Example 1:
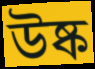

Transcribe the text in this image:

উষ্ক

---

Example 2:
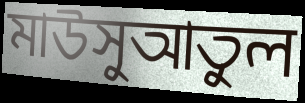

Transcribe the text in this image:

মাউসুআতুল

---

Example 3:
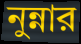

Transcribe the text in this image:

নুন্নার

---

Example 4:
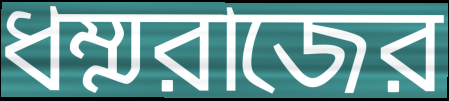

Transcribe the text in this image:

ধম্মরাজের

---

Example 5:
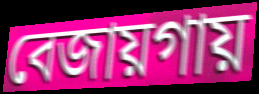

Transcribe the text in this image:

বেজায়গায়